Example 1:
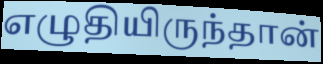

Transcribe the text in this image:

எழுதியிருந்தான்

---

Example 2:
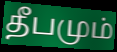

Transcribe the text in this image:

தீபமும்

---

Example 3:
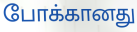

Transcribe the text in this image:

போக்கானது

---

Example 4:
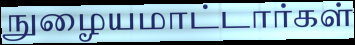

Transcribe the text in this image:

நுழையமாட்டார்கள்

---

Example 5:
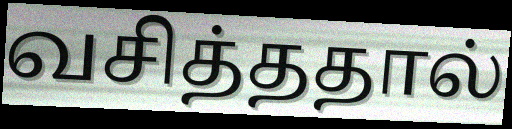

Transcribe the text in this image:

வசித்ததால்